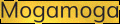
Mogamoga